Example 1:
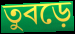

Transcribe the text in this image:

তুবড়ে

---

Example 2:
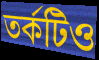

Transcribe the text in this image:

তর্কটিও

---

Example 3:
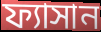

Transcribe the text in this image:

ফ্যাসান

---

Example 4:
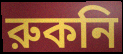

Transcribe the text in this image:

রুকনি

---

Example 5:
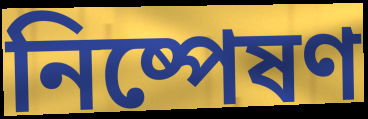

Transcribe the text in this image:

নিষ্পেষণ